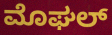
ಮೊಘಲ್